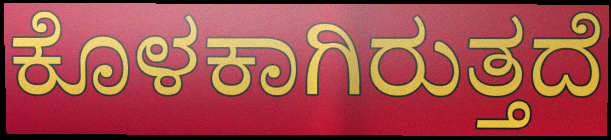
ಕೊಳಕಾಗಿರುತ್ತದೆ